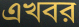
এখবর